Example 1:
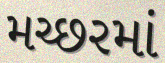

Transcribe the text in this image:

મચ્છરમાં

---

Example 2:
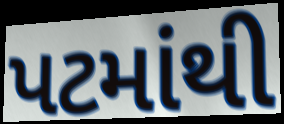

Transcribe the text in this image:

પટમાંથી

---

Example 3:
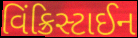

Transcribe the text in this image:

વિંક્રિસ્ટાઈન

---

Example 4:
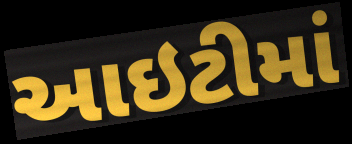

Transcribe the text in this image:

આઇટીમાં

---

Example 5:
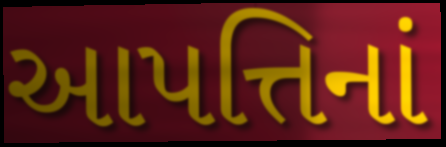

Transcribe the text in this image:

આપત્તિનાં